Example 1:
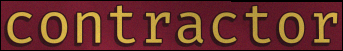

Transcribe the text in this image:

contractor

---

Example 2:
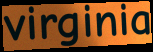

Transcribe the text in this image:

virginia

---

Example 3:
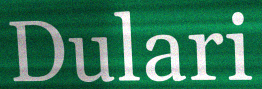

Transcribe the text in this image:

Dulari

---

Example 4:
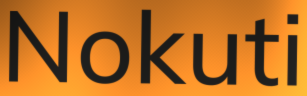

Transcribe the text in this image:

Nokuti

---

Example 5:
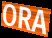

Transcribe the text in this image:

ORA